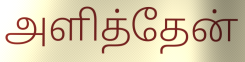
அளித்தேன்